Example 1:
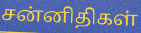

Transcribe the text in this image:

சன்னிதிகள்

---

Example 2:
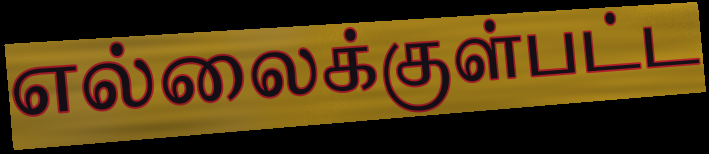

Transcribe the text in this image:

எல்லைக்குள்பட்ட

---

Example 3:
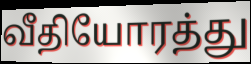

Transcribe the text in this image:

வீதியோரத்து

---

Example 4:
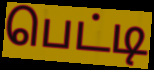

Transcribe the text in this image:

பெட்டி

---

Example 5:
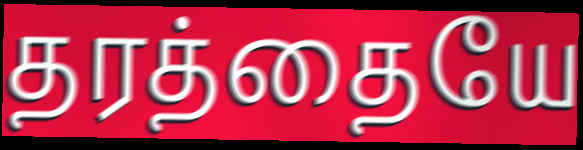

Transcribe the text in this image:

தரத்தையே